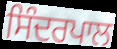
ਸਿੰਦਰਪਾਲ